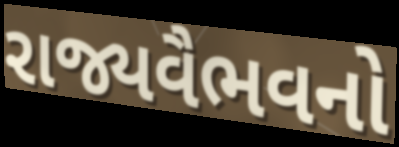
રાજ્યવૈભવનો